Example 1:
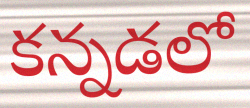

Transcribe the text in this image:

కన్నడలో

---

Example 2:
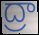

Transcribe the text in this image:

ద్రా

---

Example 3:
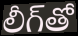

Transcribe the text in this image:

లీగ్‌తో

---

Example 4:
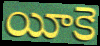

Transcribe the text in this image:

యీకె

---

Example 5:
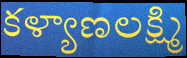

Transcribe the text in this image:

కళ్యాణలక్ష్మి